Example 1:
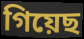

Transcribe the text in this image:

গিয়েছ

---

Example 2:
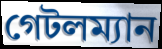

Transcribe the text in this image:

গেটলম্যান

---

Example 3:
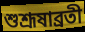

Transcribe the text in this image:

শুশ্রূষাব্রতী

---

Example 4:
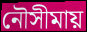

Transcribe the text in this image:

নৌসীমায়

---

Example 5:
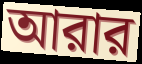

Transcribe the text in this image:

আরার